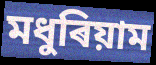
মধুৰিয়াম